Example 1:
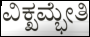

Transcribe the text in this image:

ವಿಕ್ಖಮ್ಭೇತಿ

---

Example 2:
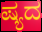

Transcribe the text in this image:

ಷ್ಯದ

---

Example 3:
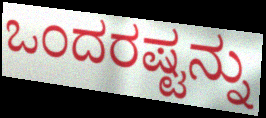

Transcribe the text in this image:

ಒಂದರಷ್ಟನ್ನು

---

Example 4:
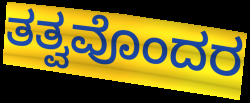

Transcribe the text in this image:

ತತ್ವವೊಂದರ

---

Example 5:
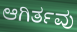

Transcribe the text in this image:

ಆಗಿರ್ತವು